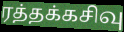
ரத்தக்கசிவு